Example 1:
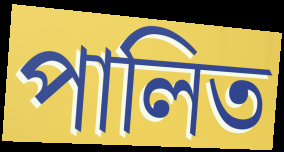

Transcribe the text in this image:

পালিত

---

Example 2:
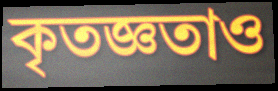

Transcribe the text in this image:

কৃতজ্ঞতাও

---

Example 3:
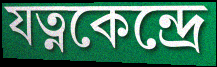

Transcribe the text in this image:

যত্নকেন্দ্রে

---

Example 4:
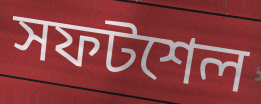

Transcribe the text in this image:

সফটশেল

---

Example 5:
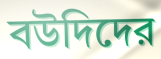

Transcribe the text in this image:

বউদিদের